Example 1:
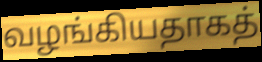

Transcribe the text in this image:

வழங்கியதாகத்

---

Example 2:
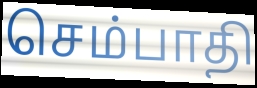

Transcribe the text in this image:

செம்பாதி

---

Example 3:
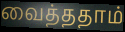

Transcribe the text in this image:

வைத்ததாம்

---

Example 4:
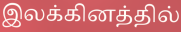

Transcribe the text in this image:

இலக்கினத்தில்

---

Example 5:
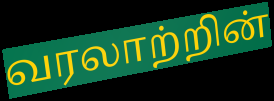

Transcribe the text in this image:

வரலாற்றின்